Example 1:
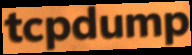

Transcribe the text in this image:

tcpdump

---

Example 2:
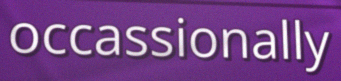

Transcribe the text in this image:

occassionally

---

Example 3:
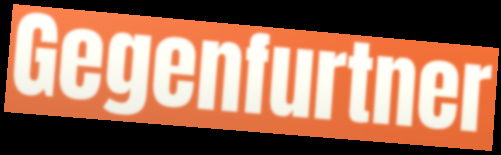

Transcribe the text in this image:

Gegenfurtner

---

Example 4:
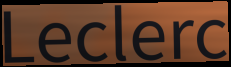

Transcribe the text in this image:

Leclerc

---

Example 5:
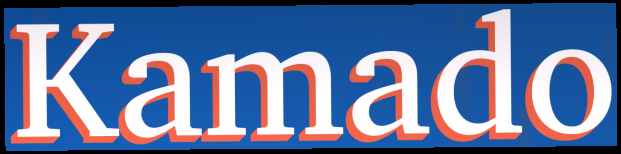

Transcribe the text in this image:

Kamado